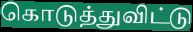
கொடுத்துவிட்டு